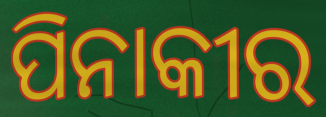
ପିନାକୀର